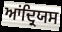
ਆਂਦ੍ਰਿਯਸ